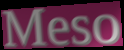
Meso